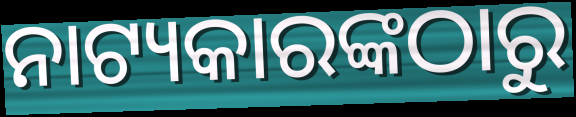
ନାଟ୍ୟକାରଙ୍କଠାରୁ